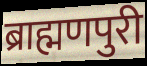
ब्राह्मणपुरी